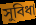
সুবিধা